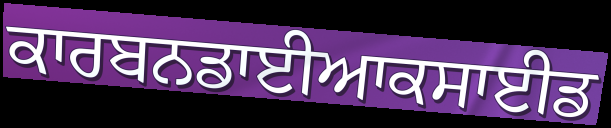
ਕਾਰਬਨਡਾਈਆਕਸਾਈਡ